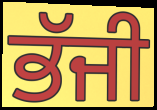
ਭੱਜੀ